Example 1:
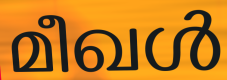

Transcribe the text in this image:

മീഖൾ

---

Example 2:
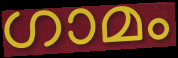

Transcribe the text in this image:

ഗാമം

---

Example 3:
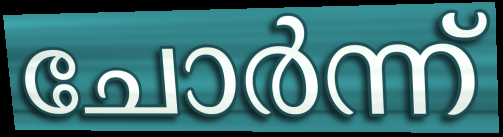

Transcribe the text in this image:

ചോർന്ന്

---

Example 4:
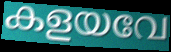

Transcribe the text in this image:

കളയവേ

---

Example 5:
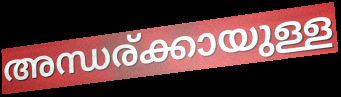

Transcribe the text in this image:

അന്ധര്ക്കായുള്ള